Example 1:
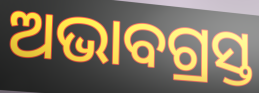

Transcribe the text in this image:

ଅଭାବଗ୍ରସ୍ତ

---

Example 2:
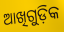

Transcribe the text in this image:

ଆଖିଗୁଡ଼ିକ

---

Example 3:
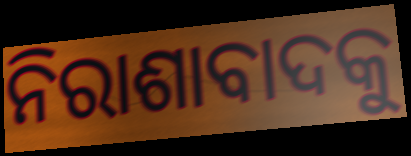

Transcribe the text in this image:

ନିରାଶାବାଦକୁ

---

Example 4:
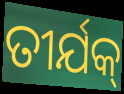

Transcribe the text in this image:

ତୀର୍ଯକ୍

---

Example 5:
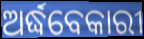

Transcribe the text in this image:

ଅର୍ଦ୍ଧବେକାରୀ